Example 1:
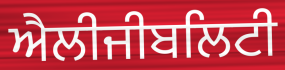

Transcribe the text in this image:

ਐਲੀਜੀਬਲਿਟੀ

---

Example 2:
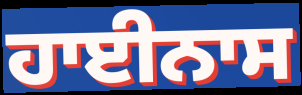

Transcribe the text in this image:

ਹਾਈਨਾਸ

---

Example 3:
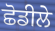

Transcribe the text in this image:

ਛੋਡੀਲੇ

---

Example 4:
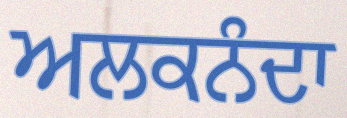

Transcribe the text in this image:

ਅਲਕਨੰਦਾ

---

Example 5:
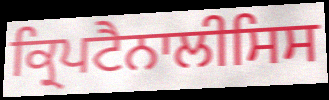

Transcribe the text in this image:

ਕ੍ਰਿਪਟੈਨਾਲੀਸਿਸ